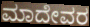
ಮಾದೇವರ